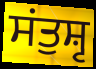
ਸਂਤੁਸ਼੍ਟ